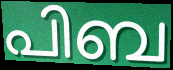
പിബ